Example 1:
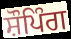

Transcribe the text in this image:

ਸ਼ੌਪਿੰਗ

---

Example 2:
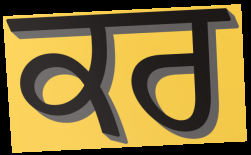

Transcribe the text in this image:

ਕਰ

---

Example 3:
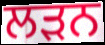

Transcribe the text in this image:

ਲਡ਼ਨ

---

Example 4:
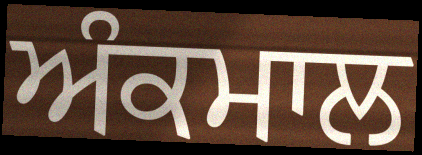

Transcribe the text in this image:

ਅੰਕਮਾਲ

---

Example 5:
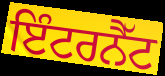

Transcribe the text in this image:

ਇੰਟਰਨੈੱਟ